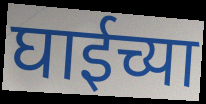
घाईच्या